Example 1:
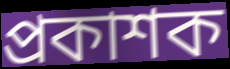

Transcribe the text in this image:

প্রকাশক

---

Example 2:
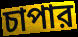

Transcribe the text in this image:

চাপার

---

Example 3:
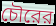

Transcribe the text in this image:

চৌরের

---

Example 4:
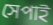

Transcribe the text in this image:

সেপাই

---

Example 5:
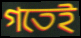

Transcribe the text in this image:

গতেই